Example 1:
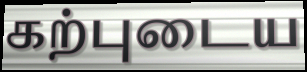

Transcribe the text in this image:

கற்புடைய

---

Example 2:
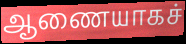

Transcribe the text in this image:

ஆணையாகச்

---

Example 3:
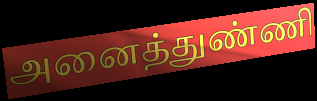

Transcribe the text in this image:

அனைத்துண்ணி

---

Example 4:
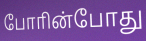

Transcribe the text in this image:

போரின்போது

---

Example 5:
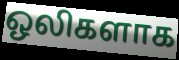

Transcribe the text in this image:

ஒலிகளாக